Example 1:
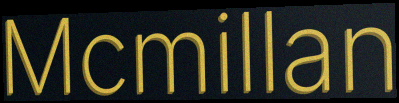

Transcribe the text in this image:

Mcmillan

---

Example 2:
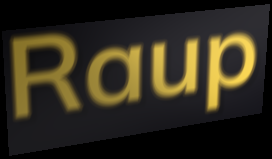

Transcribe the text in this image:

Raup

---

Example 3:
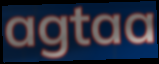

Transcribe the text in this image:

agtaa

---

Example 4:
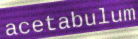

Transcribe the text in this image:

acetabulum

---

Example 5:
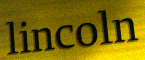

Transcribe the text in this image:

lincoln